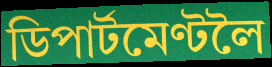
ডিপাৰ্টমেণ্টলৈ